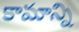
కామాన్ని